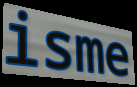
isme